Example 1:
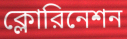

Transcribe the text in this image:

ক্লোরিনেশন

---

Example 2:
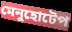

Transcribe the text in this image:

মেনুহোটেপ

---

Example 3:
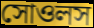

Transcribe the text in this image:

সোওলস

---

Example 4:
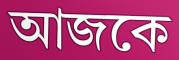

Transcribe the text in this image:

আজকে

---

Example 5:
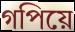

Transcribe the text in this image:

গপিয়ে